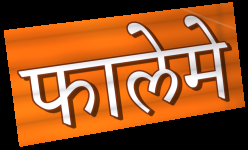
फालेमे